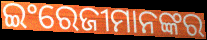
ଇଂରେଜୀମାନଙ୍କର